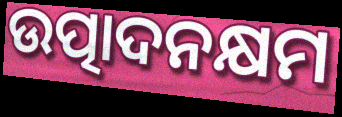
ଉତ୍ପାଦନକ୍ଷମ